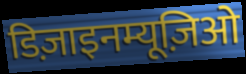
डिज़ाइनम्यूज़िओ